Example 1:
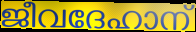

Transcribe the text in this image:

ജീവദേഹാന്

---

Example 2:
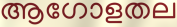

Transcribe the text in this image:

ആഗോളതല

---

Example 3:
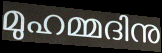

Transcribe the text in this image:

മുഹമ്മദിനു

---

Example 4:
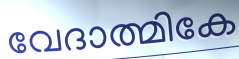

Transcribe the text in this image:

വേദാത്മികേ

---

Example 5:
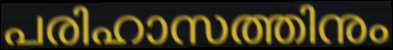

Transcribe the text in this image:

പരിഹാസത്തിനും